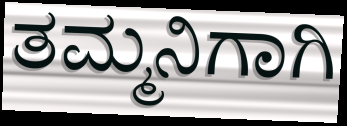
ತಮ್ಮನಿಗಾಗಿ